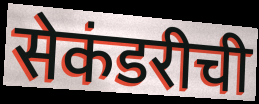
सेकंडरीची